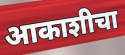
आकाशीचा